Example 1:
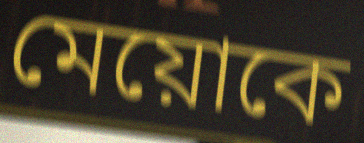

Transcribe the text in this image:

মেয়োকে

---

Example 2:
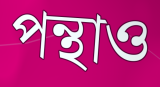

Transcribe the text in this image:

পন্থাও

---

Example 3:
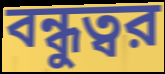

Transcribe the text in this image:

বন্ধুত্বর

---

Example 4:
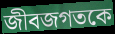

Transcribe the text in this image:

জীবজগতকে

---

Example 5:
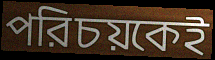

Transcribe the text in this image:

পরিচয়কেই